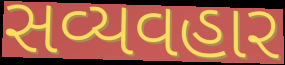
સવ્યવહાર